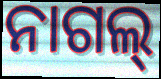
ନାଗଲ୍